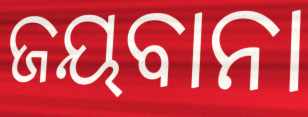
ଜୟବାନା